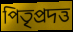
পিতৃপ্রদত্ত